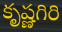
కృష్ణగిరి